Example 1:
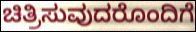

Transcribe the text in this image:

ಚಿತ್ರಿಸುವುದರೊಂದಿಗೆ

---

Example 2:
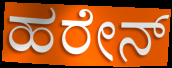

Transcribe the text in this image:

ಹರೇನ್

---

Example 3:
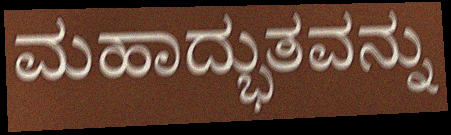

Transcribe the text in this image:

ಮಹಾದ್ಭುತವನ್ನು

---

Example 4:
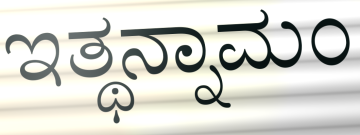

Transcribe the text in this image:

ಇತ್ಥನ್ನಾಮಂ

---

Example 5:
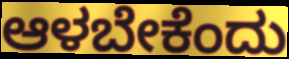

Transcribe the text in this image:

ಆಳಬೇಕೆಂದು